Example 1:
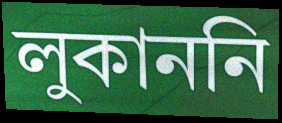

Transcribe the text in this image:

লুকাননি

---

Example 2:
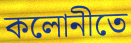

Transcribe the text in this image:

কলোনীতে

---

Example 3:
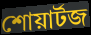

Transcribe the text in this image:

শোয়ার্টজ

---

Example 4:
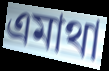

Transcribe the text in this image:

এমাথা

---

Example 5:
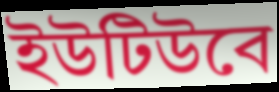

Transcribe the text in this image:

ইউটিউবে